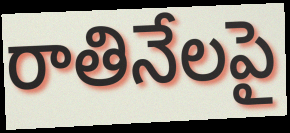
రాతినేలపై